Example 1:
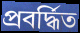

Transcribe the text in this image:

প্রবর্দ্ধিত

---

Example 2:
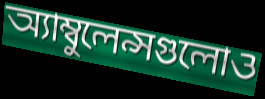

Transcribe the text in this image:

অ্যাম্বুলেন্সগুলোও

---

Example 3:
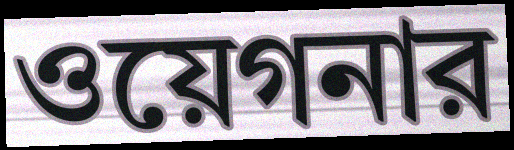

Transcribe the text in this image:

ওয়েগনার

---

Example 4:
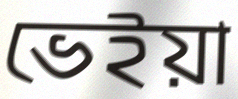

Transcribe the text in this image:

ভেইয়া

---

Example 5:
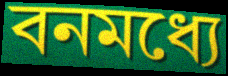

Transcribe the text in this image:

বনমধ্যে